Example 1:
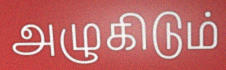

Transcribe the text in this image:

அழுகிடும்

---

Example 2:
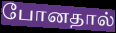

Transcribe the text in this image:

போனதால்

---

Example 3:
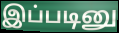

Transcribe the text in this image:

இப்படினு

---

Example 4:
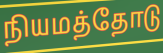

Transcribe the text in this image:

நியமத்தோடு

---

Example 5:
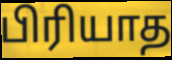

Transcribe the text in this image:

பிரியாத